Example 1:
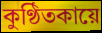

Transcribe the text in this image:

কুণ্ঠিতকায়ে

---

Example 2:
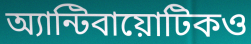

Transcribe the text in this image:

অ্যান্টিবায়োটিকও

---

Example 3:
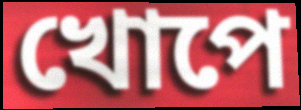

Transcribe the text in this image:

খোপে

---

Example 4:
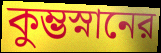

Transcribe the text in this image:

কুম্ভস্নানের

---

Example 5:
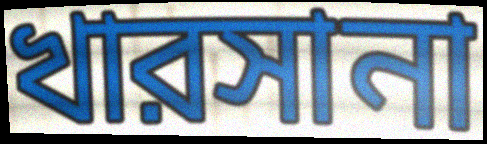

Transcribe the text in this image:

খারসানা